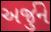
અર્જુને